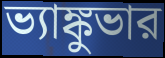
ভ্যাঙ্কুভার